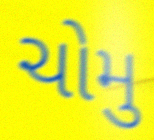
ચોમુ